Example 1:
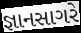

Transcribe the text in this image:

જ્ઞાનસાગરે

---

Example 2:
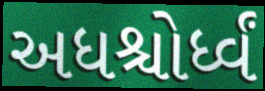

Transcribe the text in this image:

અધશ્ચોર્ધ્વં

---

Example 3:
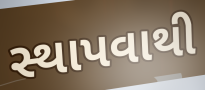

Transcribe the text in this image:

સ્થાપવાથી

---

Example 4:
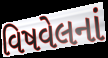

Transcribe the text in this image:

વિષવેલનાં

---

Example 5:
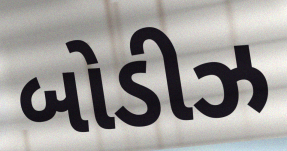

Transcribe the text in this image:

બોડીઝ